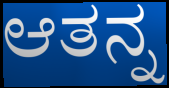
ಆತನ್ನ